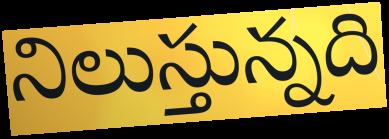
నిలుస్తున్నది